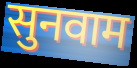
सुनवाम